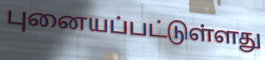
புனையப்பட்டுள்ளது